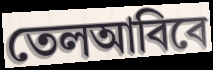
তেলআবিবে